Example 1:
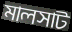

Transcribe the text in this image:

মালসাট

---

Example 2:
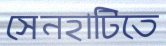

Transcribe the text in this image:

সেনহাটিতে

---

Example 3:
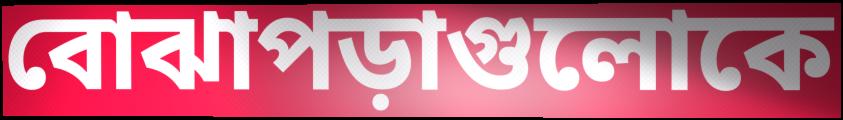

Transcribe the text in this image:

বোঝাপড়াগুলোকে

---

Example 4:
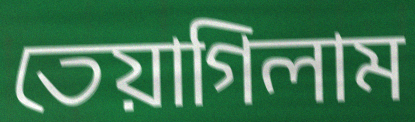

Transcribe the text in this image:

তেয়াগিলাম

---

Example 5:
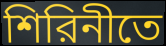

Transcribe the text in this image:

শিরিনীতে